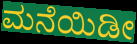
ಮನೆಯಿಡೀ